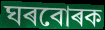
ঘৰবোৰক